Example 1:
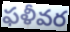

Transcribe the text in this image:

ఫళీవర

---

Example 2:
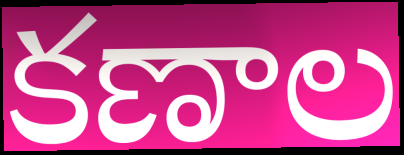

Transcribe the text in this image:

కణాల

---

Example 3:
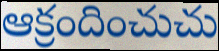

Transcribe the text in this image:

ఆక్రందించుచు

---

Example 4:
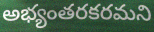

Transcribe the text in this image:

అభ్యంతరకరమని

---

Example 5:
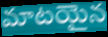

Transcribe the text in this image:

మాటయైన